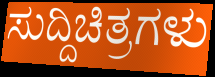
ಸುದ್ದಿಚಿತ್ರಗಳು